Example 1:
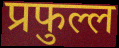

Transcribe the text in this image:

प्रफुल्ल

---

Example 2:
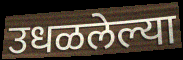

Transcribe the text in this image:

उधळलेल्या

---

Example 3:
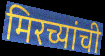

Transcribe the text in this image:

मिरच्यांची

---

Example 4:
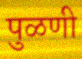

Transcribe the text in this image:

पुळणी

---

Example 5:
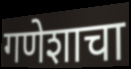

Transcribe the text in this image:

गणेशाचा